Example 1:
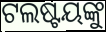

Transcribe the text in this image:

ଟଲଷ୍ଟୟଙ୍କୁ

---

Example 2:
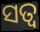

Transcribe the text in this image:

ସତ୍ୱ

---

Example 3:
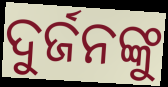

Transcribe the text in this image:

ଦୁର୍ଜନଙ୍କୁ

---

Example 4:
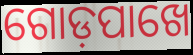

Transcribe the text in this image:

ଗୋଡ଼ପାଖେ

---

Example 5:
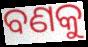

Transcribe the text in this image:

ବଣକୁ